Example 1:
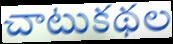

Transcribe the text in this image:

చాటుకథల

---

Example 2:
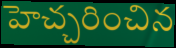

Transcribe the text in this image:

హెచ్చరించిన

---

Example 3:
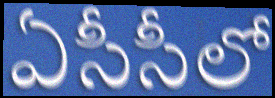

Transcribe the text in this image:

ఏసీసీలో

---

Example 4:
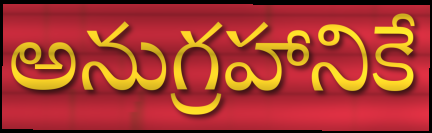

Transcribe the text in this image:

అనుగ్రహానికే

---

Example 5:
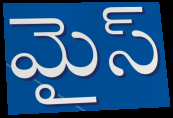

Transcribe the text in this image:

మైస్